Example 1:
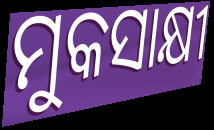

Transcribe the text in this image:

ମୁକସାକ୍ଷୀ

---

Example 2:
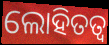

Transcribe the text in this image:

ଲୋହିତତ୍ଵ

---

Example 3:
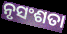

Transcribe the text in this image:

ନୃସଂଶତା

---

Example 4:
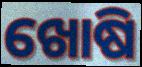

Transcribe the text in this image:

ଖୋଷି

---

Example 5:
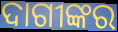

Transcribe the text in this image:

ଦାଗୀଙ୍କର